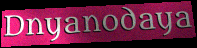
Dnyanodaya